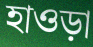
হাওড়া